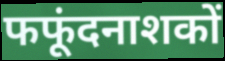
फफूंदनाशकों